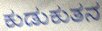
ಕುಡುಕುತನ